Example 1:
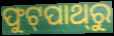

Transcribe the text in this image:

ଫୁଟ୍‌ପାଥ୍‌ରୁ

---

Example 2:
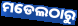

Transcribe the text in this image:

ମଡେଲଠାରୁ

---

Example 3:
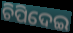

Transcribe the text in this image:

ଚିପିଦେଇ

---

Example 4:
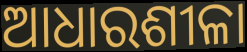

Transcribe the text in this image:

ଆଧାରଶୀଳା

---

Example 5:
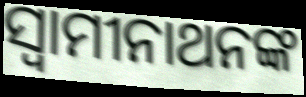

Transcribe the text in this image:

ସ୍ଵାମୀନାଥନଙ୍କ